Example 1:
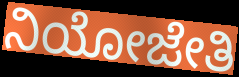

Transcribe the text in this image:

ನಿಯೋಜೇತಿ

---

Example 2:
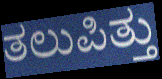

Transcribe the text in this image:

ತಲುಪಿತ್ತು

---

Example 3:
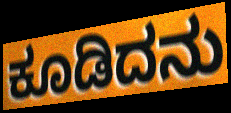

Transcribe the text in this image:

ಕೂಡಿದನು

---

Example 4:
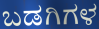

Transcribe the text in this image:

ಬಡಗಿಗಳ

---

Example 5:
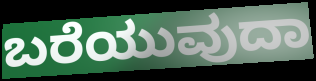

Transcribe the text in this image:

ಬರೆಯುವುದಾ